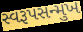
સ્વરૂપસન્મુખ